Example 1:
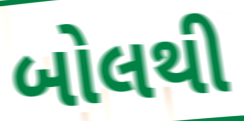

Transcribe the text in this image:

બોલથી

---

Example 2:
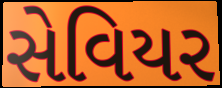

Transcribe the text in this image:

સેવિયર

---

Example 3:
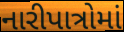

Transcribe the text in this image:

નારીપાત્રોમાં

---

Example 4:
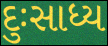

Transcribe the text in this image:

દુઃસાધ્ય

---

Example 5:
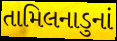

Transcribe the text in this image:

તામિલનાડુનાં